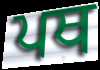
ਪਥ